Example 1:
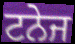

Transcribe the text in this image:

ਟਨੇਜ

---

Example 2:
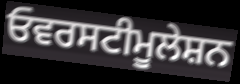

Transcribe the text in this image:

ਓਵਰਸਟੀਮੂਲੇਸ਼ਨ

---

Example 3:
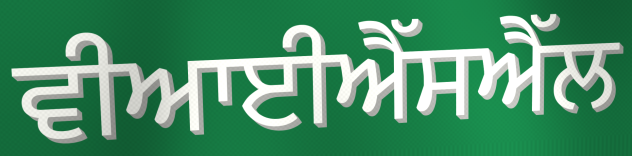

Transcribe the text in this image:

ਵੀਆਈਐੱਸਐੱਲ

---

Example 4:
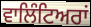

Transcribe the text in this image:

ਵਾਲਿੰਟਿਅਰਾਂ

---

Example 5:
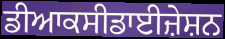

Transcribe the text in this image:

ਡੀਆਕਸੀਡਾਈਜ਼ੇਸ਼ਨ